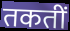
तकतीं